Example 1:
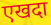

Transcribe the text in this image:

एखदा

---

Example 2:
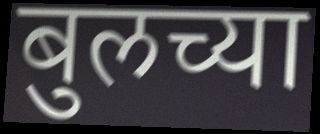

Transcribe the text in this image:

बुलच्या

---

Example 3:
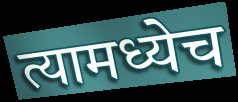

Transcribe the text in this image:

त्यामध्येच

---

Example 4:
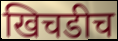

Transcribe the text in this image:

खिचडीच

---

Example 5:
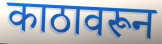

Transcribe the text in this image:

काठावरून